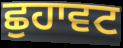
ਛੁਹਾਵਟ